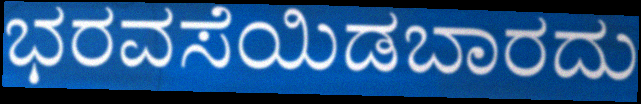
ಭರವಸೆಯಿಡಬಾರದು